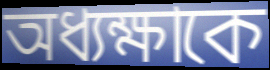
অধ্যক্ষাকে